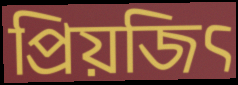
প্রিয়জিৎ